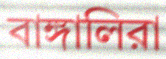
বাঙ্গালিরা